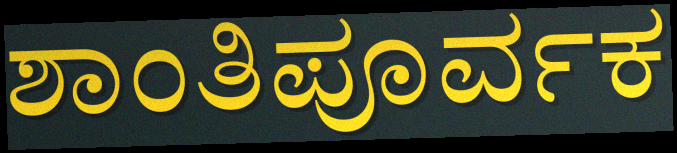
ಶಾಂತಿಪೂರ್ವಕ